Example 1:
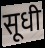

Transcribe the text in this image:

सूधी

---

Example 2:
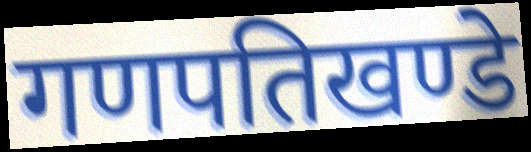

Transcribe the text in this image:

गणपतिखण्डे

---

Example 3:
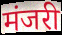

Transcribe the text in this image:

मंजरी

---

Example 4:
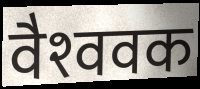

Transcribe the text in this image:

वैश्ववक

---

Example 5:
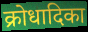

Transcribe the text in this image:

क्रोधादिका